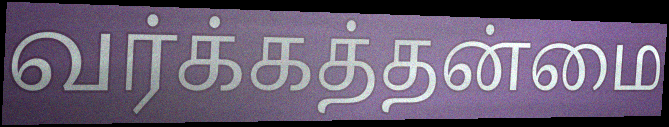
வர்க்கத்தன்மை